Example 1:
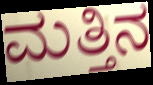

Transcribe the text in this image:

ಮತ್ತಿನ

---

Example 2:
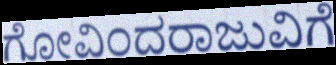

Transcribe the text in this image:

ಗೋವಿಂದರಾಜುವಿಗೆ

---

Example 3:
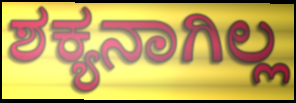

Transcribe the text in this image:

ಶಕ್ಯನಾಗಿಲ್ಲ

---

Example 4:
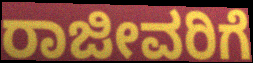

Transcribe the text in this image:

ರಾಜೀವರಿಗೆ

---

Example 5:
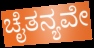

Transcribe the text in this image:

ಚೈತನ್ಯವೇ